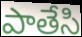
పాతేసి